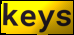
keys